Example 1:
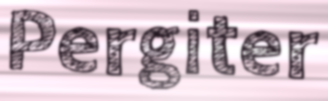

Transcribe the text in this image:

Pergiter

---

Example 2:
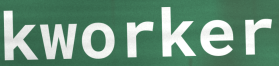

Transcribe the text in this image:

kworker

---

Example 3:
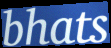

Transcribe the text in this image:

bhats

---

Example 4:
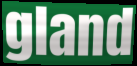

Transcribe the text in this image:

gland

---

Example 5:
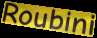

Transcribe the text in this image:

Roubini